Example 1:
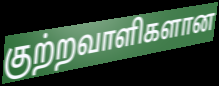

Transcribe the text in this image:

குற்றவாளிகளான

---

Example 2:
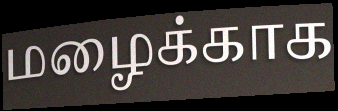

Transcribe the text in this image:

மழைக்காக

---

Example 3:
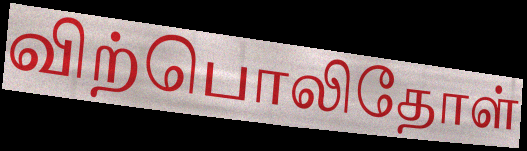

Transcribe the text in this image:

விற்பொலிதோள்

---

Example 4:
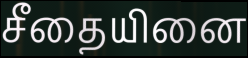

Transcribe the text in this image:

சீதையினை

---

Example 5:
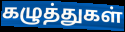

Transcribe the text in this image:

கழுத்துகள்